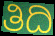
ತಿದಿ